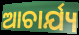
ଆଚାର୍ଯ୍ୟ